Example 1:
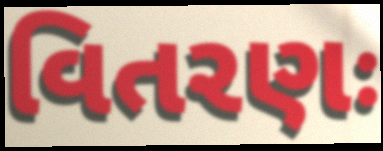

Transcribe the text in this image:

વિતરણઃ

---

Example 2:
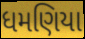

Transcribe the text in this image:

ધમણિયા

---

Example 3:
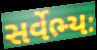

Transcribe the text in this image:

સર્વેભ્યઃ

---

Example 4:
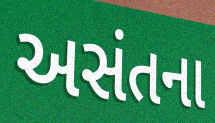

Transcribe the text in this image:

અસંતના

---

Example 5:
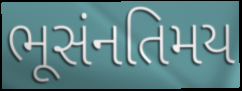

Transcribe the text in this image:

ભૂસંનતિમય